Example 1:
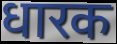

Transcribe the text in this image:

धारक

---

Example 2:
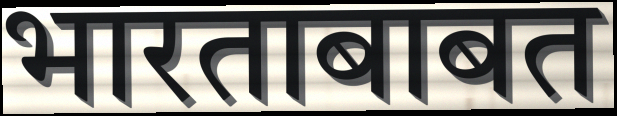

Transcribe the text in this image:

भारताबाबत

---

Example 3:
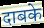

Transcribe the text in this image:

दाबके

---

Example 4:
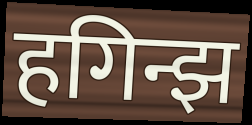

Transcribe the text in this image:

हगिन्झ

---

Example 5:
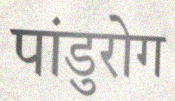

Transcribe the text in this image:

पांडुरोग